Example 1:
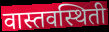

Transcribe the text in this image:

वास्तवस्थिती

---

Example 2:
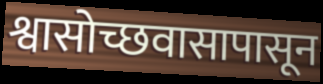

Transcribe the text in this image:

श्वासोच्छवासापासून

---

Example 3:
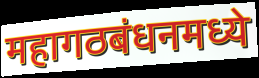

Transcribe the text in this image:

महागठबंधनमध्ये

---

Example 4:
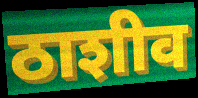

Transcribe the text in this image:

ठाशीव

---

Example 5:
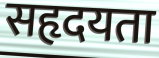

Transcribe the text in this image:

सहृदयता